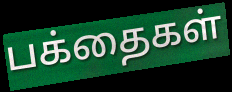
பக்தைகள்